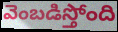
వెంబడిస్తోంది